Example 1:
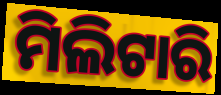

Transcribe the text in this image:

ମିଲିଟାରି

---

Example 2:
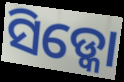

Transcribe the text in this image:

ସିଡ୍କୋ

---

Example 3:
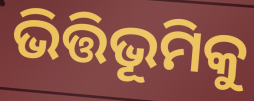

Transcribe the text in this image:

ଭିତ୍ତିଭୂମିକୁ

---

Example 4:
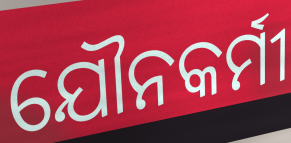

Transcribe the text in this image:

ଯୌନକର୍ମୀ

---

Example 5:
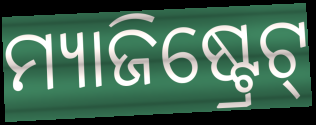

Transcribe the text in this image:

ମ୍ୟାଜିଷ୍ଟ୍ରେଟ୍